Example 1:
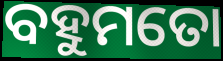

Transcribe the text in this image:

ବହୁମତୋ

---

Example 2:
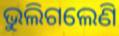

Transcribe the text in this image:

ଭୁଲିଗଲେଣି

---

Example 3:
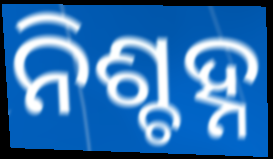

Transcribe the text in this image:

ନିଶ୍ଚହ୍ନ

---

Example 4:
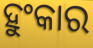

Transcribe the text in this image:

ହୁଂକାର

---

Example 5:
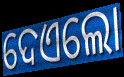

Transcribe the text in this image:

ଦେଏଲୋ